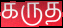
கருத